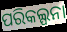
ପରିକଲ୍ପନା